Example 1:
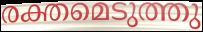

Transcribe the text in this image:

രക്തമെടുത്തു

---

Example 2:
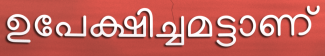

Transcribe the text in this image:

ഉപേക്ഷിച്ചമട്ടാണ്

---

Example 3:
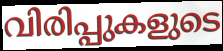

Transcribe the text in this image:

വിരിപ്പുകളുടെ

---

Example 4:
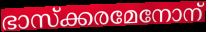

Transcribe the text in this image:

ഭാസ്ക്കരമേനോന്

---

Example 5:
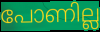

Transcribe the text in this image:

പോണില്ല